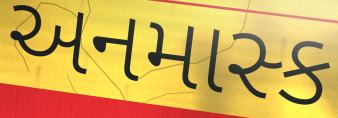
અનમાસ્ક